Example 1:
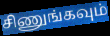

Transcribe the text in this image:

சிணுங்கவும்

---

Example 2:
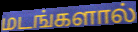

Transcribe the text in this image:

மடங்களால்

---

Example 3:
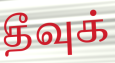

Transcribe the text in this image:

தீவுக்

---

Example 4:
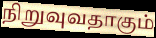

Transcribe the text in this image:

நிறுவுவதாகும்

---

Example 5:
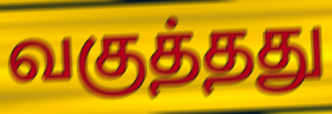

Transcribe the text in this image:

வகுத்தது